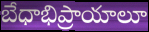
బేధాభిప్రాయాలూ